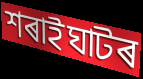
শৰাইঘাটৰ